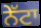
ਨੇੱਟਾ